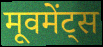
मूवमेंट्स